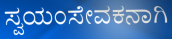
ಸ್ವಯಂಸೇವಕನಾಗಿ